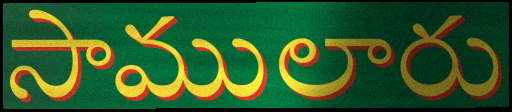
సాములారు